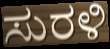
ಸುರಳಿ